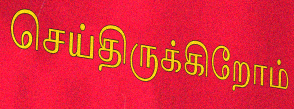
செய்திருக்கிறோம்